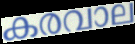
കരവാല